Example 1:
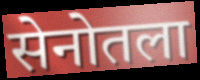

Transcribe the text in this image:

सेनोतला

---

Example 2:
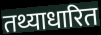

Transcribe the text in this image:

तथ्याधारित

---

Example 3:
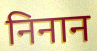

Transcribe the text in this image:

निनान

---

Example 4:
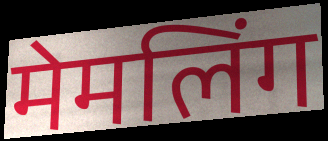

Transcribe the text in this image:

मेमलिंग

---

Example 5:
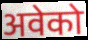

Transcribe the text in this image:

अवेको